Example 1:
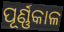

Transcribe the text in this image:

ପୂର୍ଣ୍ଣକାଳ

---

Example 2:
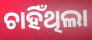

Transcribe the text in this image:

ଚାହିଁଥିଲା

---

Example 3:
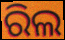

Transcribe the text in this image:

ରିଲ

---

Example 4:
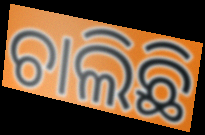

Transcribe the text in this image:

ଚାଲିଛି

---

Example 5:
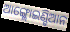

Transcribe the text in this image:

ଆଙ୍ଗ୍ଲୋଇଣ୍ଡିଆନ